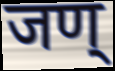
जण्